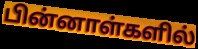
பின்னாள்களில்